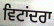
ਵਿਟਾਂਦਰਾ